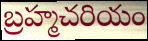
బ్రహ్మచరియం